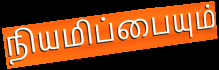
நியமிப்பையும்